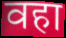
वहा